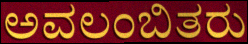
ಅವಲಂಬಿತರು